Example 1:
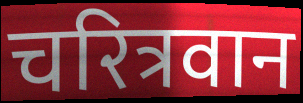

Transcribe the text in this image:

चरित्रवान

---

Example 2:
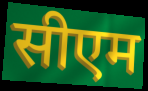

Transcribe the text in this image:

सीएम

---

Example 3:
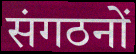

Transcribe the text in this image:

संगठनों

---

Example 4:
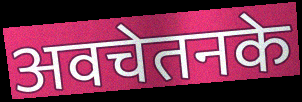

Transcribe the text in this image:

अवचेतनके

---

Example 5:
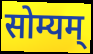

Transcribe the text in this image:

सोम्यम्